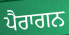
ਪੈਰਾਗਨ